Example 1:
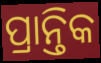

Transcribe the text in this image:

ପ୍ରାନ୍ତିକ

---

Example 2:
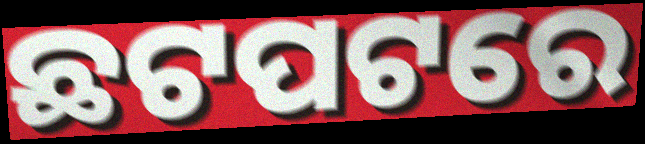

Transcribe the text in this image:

ଛଟପଟରେ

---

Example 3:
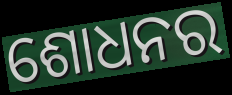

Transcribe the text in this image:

ଶୋଧନର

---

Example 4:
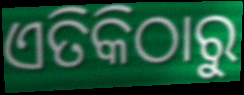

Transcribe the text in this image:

ଏତିକିଠାରୁ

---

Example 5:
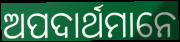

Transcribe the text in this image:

ଅପଦାର୍ଥମାନେ